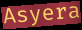
Asyera